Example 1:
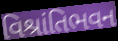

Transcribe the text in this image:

વિશ્રાંતિભવન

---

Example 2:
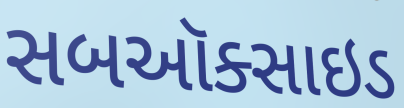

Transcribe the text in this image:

સબઑક્સાઇડ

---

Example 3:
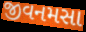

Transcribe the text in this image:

જીવનમસા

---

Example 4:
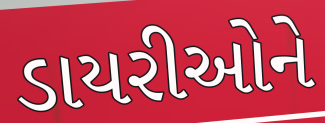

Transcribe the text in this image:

ડાયરીઓને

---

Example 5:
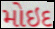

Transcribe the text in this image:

મોઇદ